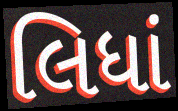
લિધાં